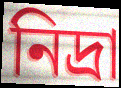
নিদ্ৰা